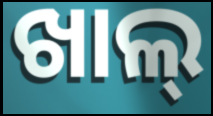
ଖାଲ୍